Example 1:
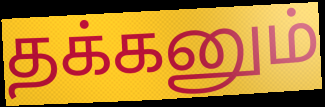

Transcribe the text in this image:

தக்கனும்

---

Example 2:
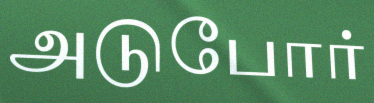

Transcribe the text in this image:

அடுபோர்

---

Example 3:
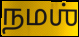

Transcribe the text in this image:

நமஶ்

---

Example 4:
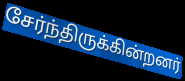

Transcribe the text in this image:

சேர்ந்திருக்கின்றனர்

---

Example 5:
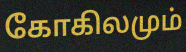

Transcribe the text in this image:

கோகிலமும்